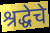
श्रद्धेचे